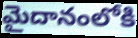
మైదానంలోకి